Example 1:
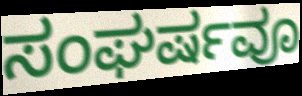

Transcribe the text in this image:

ಸಂಘರ್ಷವೂ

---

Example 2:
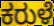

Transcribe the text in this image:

ಕರುಳೆ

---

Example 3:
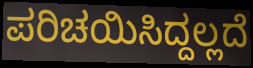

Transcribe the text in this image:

ಪರಿಚಯಿಸಿದ್ದಲ್ಲದೆ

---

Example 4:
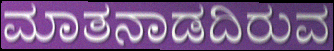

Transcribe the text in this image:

ಮಾತನಾಡದಿರುವ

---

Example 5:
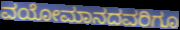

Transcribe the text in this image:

ವಯೋಮಾನದವರಿಗೂ